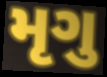
મૃગુ